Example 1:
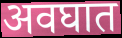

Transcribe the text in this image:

अवघात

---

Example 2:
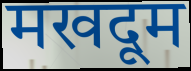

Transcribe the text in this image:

मखदूम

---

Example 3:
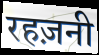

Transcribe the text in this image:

रहज़नी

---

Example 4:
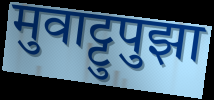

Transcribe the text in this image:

मुवाट्टुपुझा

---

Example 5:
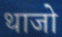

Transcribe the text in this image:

थाजो